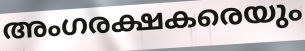
അംഗരക്ഷകരെയും